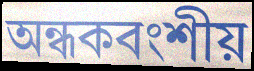
অন্ধকবংশীয়